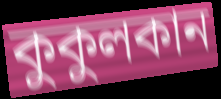
কুকুলকান